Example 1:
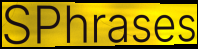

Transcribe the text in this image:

SPhrases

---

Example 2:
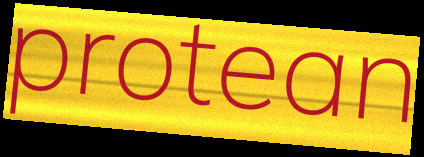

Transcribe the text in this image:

protean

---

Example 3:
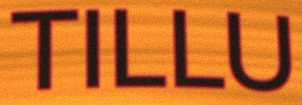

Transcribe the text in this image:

TILLU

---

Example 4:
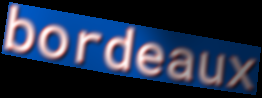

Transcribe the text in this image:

bordeaux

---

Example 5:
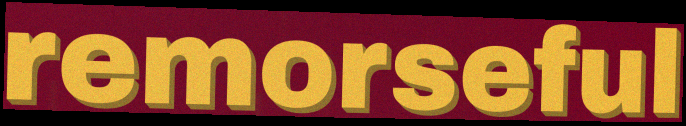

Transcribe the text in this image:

remorseful